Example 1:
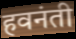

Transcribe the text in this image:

हवनंती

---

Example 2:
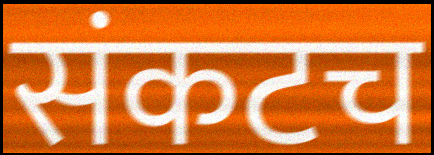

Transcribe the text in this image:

संकटच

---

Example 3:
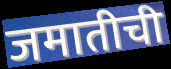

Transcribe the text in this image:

जमातीची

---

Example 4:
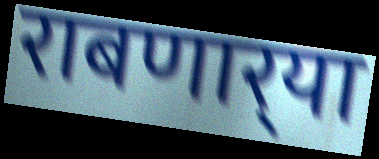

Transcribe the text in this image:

राबणार्‍या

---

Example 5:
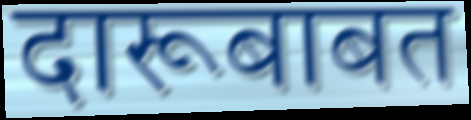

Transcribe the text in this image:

दारूबाबत